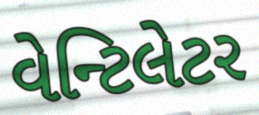
વેન્‍ટિલેટર